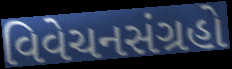
વિવેચનસંગ્રહો